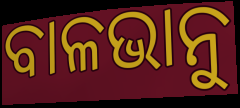
ବାଳଭାନୁ